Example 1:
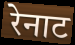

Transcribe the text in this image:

रेनाट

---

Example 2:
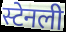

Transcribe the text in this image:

स्‍टेनली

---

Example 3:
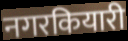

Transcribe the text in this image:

नगरकियारी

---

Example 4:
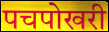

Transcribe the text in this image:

पचपोखरी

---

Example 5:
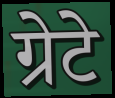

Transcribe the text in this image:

ग्रेटे